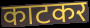
काटकर